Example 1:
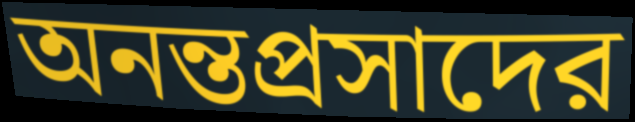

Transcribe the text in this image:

অনন্তপ্রসাদের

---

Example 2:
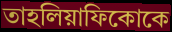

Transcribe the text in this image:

তাহলিয়াফিকোকে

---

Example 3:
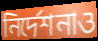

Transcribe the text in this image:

নির্দেশনাও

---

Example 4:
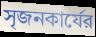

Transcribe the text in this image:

সৃজনকার্যের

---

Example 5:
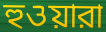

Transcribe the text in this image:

হুওয়ারা